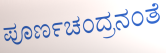
ಪೂರ್ಣಚಂದ್ರನಂತೆ